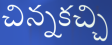
చిన్నకచ్చి